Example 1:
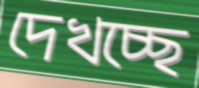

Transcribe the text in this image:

দেখচ্ছে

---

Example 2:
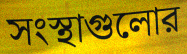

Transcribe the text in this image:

সংস্থাগুলোর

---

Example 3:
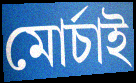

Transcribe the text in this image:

মোর্চাই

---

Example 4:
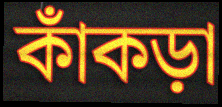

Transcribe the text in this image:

কাঁকড়া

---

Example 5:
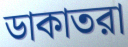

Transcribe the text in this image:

ডাকাতরা